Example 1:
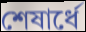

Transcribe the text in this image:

শেষার্ধে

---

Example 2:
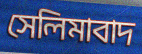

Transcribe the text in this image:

সেলিমাবাদ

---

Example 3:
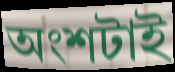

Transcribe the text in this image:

অংশটাই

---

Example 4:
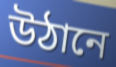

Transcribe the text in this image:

উঠানে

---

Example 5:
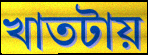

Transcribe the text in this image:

খাতটায়